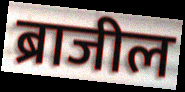
ब्राजील